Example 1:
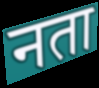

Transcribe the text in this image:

नता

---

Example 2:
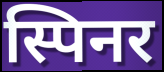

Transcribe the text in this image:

स्पिनर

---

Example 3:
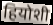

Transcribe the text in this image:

हियोशी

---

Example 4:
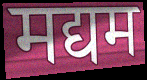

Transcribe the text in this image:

मद्यम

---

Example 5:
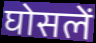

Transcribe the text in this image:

घोसलें